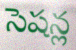
సెషన్ల